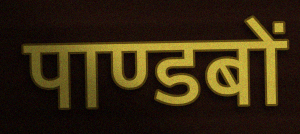
पाण्डबों